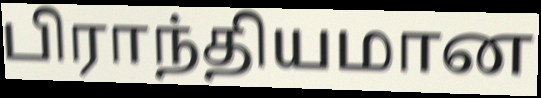
பிராந்தியமான